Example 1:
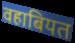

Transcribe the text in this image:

वहाबियत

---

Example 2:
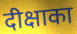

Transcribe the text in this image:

दीक्षाका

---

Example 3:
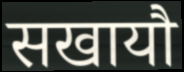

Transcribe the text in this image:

सखायौ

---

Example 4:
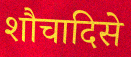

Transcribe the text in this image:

शौचादिसे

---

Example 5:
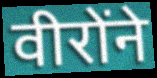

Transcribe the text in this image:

वीरोंने